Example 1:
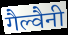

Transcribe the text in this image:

गैल्वैनी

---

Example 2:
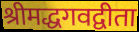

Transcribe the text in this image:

श्रीमद्धगवद्वीता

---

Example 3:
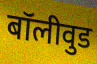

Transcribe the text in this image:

बॉलीवुड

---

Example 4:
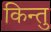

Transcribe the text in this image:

किन्तु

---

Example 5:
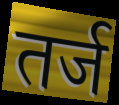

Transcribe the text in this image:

तर्ज